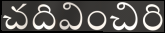
చదివించిరి